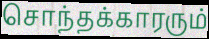
சொந்தக்காரரும்